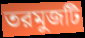
তরমুজটি